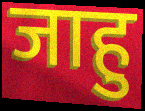
जाहु